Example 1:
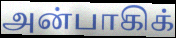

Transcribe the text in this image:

அன்பாகிக்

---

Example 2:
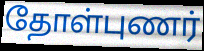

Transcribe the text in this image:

தோள்புணர்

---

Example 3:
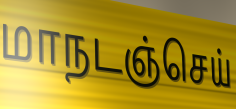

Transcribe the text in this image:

மாநடஞ்செய்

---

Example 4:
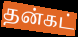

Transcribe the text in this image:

தன்கட்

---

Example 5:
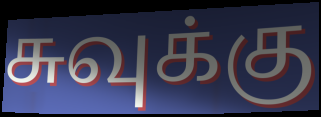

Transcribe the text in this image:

சுவுக்கு